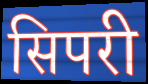
सिपरी